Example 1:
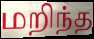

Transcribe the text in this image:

மறிந்த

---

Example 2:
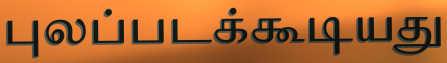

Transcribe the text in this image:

புலப்படக்கூடியது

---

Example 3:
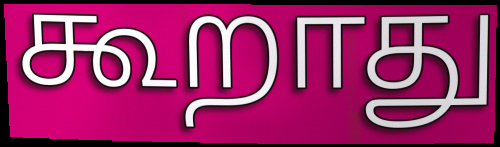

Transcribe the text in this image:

கூறாது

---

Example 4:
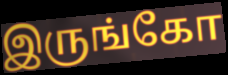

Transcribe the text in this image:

இருங்கோ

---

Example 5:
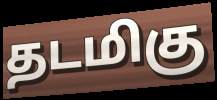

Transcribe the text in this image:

தடமிகு